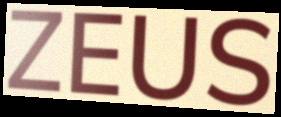
ZEUS